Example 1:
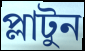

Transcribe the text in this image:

প্লাটুন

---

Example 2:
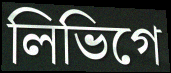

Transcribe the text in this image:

লিভিগে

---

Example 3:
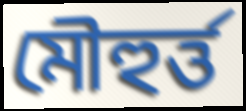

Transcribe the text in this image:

মৌহুৰ্ত্ত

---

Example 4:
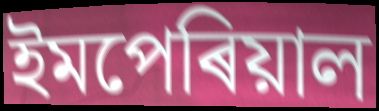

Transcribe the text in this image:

ইমপেৰিয়াল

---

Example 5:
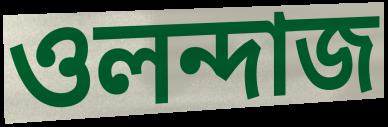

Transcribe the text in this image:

ওলন্দাজ